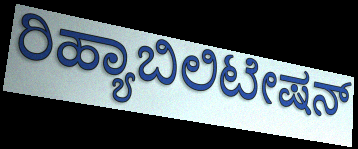
ರಿಹ್ಯಾಬಿಲಿಟೇಷನ್